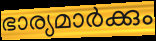
ഭാര്യമാർക്കും